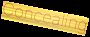
Concealing